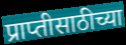
प्राप्तीसाठीच्या